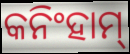
କନିଂହାମ୍